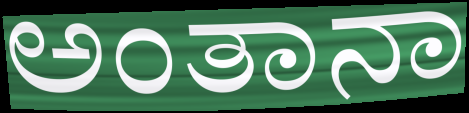
ಅಂತಾನಾ